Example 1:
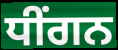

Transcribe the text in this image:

ਧੀਂਗਨ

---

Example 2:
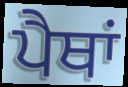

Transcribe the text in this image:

ਪੈਥਾਂ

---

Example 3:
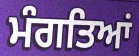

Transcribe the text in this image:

ਮੰਗਤਿਆਂ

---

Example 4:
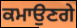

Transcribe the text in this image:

ਕਮਾਉਣਗੇ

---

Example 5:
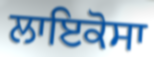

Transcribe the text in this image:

ਲਾਇਕੋਸਾ